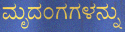
ಮೃದಂಗಗಳನ್ನು